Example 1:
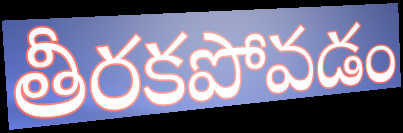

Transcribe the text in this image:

తీరకపోవడం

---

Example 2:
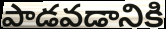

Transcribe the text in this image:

పాడవడానికి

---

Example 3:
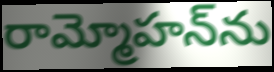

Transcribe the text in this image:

రామ్మోహన్‌ను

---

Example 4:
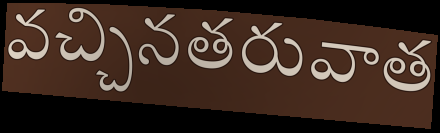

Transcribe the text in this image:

వచ్చినతరువాత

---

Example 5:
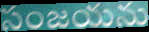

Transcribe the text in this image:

సంజయను